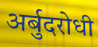
अर्बुदरोधी